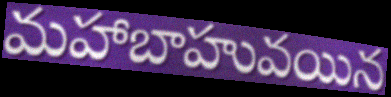
మహాబాహువయిన